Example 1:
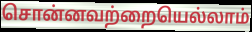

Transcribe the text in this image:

சொன்னவற்றையெல்லாம்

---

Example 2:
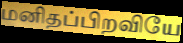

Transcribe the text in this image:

மனிதப்பிறவியே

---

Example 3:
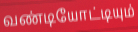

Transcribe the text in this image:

வண்டியோட்டியும்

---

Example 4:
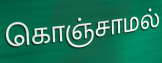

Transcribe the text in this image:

கொஞ்சாமல்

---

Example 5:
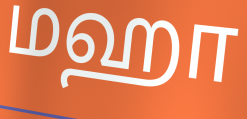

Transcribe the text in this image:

மஹா